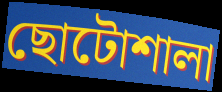
ছোটোশালা